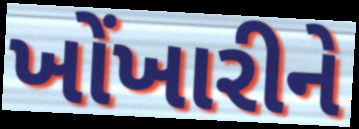
ખોંખારીને